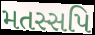
મતસ્સપિ